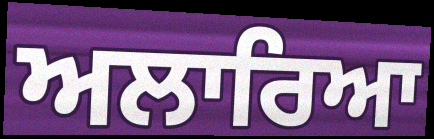
ਅਲਾਰਿਆ